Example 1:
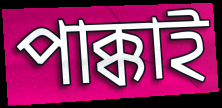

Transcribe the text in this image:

পাক্কাই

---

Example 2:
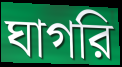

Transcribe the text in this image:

ঘাগরি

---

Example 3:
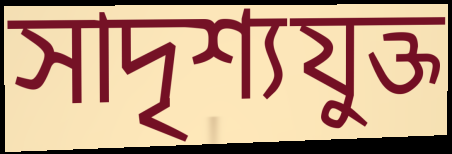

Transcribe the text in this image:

সাদৃশ্যযুক্ত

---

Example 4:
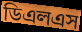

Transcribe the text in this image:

ডিএলএস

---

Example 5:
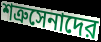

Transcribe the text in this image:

শত্রুসেনাদের